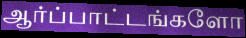
ஆர்ப்பாட்டங்களோ